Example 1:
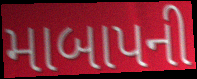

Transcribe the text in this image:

માબાપની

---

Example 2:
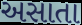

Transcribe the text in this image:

અસાતા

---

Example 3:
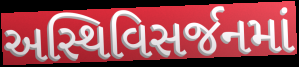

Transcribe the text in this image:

અસ્થિવિસર્જનમાં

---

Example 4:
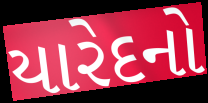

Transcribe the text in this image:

યારેદનો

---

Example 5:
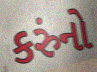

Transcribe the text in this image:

કરુંનો